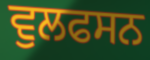
ਵੁਲਫਸਨ